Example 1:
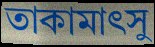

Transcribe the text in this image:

তাকামাৎসু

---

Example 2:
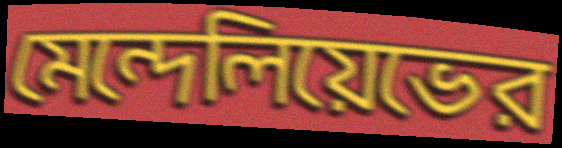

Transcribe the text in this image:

মেন্দেলিয়েভের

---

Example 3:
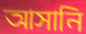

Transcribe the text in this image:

আসানি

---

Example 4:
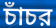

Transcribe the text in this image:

চাঁচর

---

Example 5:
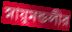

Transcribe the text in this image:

স্নায়ুমন্ডলীর